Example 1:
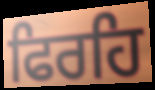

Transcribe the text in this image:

ਫਿਰਹਿ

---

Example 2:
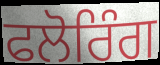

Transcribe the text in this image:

ਫਲੋਰਿੰਗ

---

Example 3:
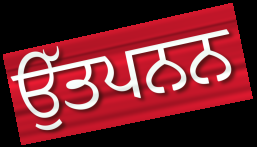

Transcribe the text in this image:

ਉੱਤਪਨਨ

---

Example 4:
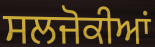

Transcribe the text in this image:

ਸਲਜੋਕੀਆਂ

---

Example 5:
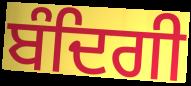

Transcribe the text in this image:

ਬੰਦਿਗੀ